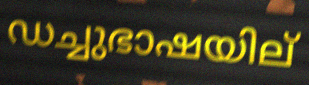
ഡച്ചുഭാഷയില്